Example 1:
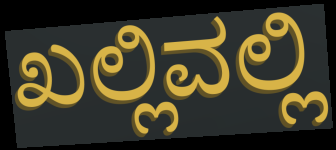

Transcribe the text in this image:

ಖಲ್ಲಿವಲ್ಲಿ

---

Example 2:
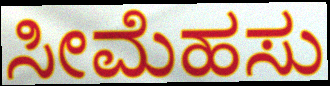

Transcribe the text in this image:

ಸೀಮೆಹಸು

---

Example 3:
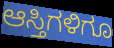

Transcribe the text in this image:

ಆಸ್ತಿಗಳಿಗೂ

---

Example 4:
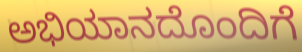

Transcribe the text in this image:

ಅಭಿಯಾನದೊಂದಿಗೆ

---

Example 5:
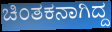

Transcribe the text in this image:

ಚಿಂತಕನಾಗಿದ್ದ